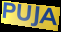
PUJA